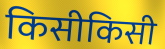
किसीकिसी